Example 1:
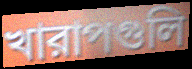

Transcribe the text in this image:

খারাপগুলি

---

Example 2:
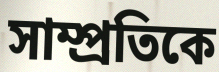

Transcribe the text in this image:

সাম্প্রতিকে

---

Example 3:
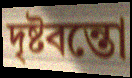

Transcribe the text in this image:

দৃষ্টবন্তো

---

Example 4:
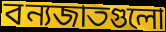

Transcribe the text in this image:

বন্যজাতগুলো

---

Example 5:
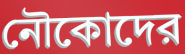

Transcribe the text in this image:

নৌকোদের